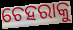
ଚେହରାକୁ